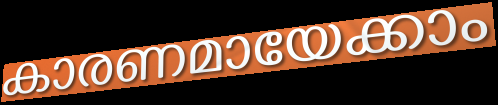
കാരണമായേക്കാം